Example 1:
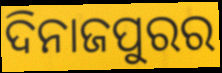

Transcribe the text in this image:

ଦିନାଜପୁରର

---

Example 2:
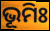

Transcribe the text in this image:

ଭୂମିଃ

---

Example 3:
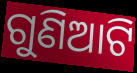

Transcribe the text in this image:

ଗୁଣିଆଟି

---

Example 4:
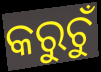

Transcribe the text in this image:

କରୁଚୁଁ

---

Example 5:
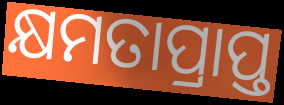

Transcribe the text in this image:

କ୍ଷମତାପ୍ରାପ୍ତ